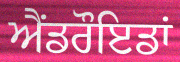
ਐਂਡਰੌਇਡਾਂ